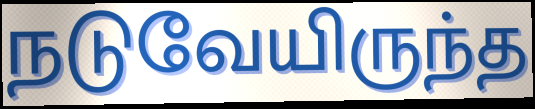
நடுவேயிருந்த